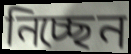
নিচ্ছেন